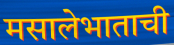
मसालेभाताची